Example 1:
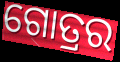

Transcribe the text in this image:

ଗୋତ୍ରର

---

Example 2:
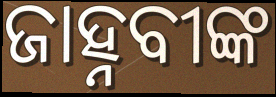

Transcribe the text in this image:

ଜାହ୍ନବୀଙ୍କ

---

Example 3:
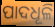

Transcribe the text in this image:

ପାଦଧୂଳି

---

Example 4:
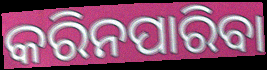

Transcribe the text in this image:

କରିନପାରିବା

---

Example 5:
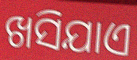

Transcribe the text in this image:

ଖସିଯାଏ